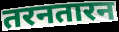
तरनतारन